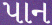
પાન